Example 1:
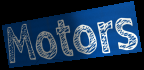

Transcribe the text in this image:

Motors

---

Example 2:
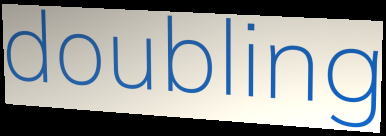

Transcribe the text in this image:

doubling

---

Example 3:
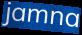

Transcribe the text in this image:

jamna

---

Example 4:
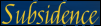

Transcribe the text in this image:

Subsidence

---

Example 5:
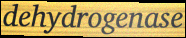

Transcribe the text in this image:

dehydrogenase